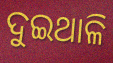
ଦୁଇଥାଳି